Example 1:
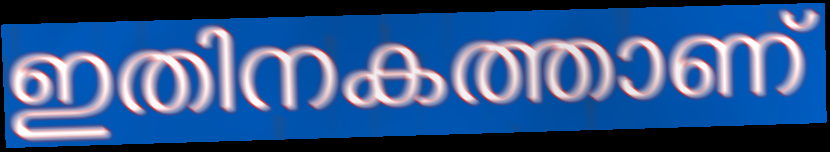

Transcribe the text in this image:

ഇതിനകത്താണ്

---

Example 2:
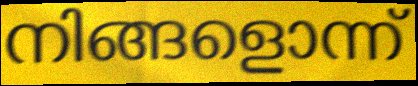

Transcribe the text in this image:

നിങ്ങളൊന്ന്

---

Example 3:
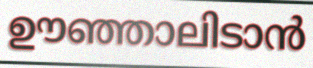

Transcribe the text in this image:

ഊഞ്ഞാലിടാൻ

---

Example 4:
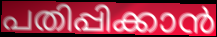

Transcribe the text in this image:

പതിപ്പിക്കാൻ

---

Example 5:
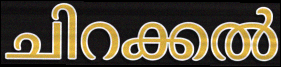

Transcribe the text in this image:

ചിറക്കൽ